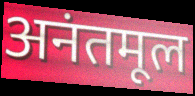
अनंतमूल